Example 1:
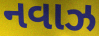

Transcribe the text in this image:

નવાઝ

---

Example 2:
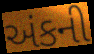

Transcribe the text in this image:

અંકની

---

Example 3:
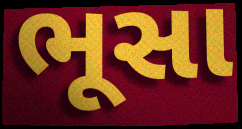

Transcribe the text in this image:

ભૂસા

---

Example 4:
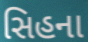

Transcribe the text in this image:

સિહના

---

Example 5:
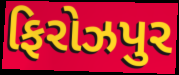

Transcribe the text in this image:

ફિરોઝપુર